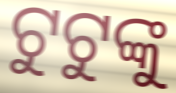
ଟୁଟୁଙ୍କୁ